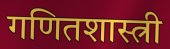
गणितशास्त्री